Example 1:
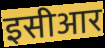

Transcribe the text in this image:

इसीआर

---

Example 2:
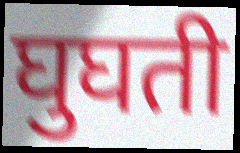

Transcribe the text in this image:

घुघती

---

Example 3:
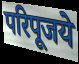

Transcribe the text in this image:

परिपूजये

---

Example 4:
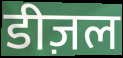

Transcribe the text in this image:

डीज़ल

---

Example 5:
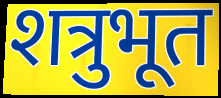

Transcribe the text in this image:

शत्रुभूत